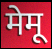
मेमू